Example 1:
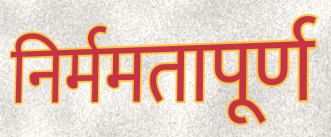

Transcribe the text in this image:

निर्ममतापूर्ण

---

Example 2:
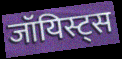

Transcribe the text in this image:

जॉयिस्ट्स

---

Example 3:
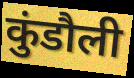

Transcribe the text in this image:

कुंडौली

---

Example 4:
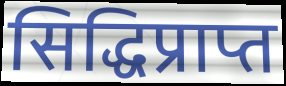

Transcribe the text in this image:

सिद्धिप्राप्त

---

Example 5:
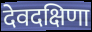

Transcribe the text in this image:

देवदक्षिणा